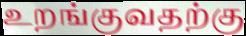
உறங்குவதற்கு